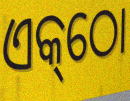
ଏକ୍‌ଠୋ